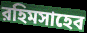
রহিমসাহেব